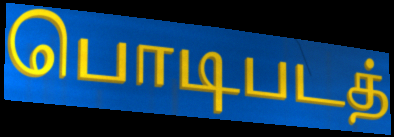
பொடிபடத்